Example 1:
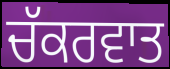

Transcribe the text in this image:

ਚੱਕਰਵਾਤ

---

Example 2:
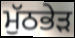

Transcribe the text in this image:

ਮੁੱਠਭੇੜ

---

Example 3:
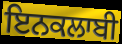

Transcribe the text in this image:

ਇਨਕਲਾਬੀ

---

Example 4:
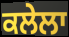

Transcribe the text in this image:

ਕਲੇਲਾ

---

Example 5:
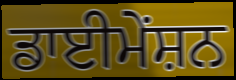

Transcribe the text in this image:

ਡਾਈਮੇਂਸ਼ਨ